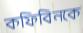
কফিবিনকে